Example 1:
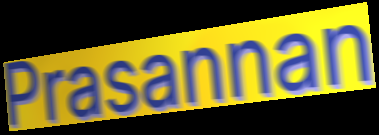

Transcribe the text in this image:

Prasannan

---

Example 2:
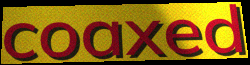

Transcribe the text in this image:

coaxed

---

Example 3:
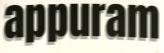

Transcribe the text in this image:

appuram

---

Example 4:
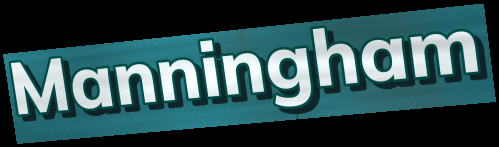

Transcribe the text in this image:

Manningham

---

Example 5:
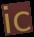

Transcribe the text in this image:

ic